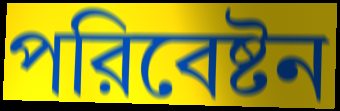
পরিবেষ্টন